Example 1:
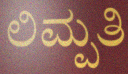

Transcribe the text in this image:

ಲಿಮ್ಪತಿ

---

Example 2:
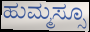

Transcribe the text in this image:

ಹುಮ್ಮಸ್ಸೂ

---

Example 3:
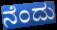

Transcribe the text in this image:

ನೆಂದು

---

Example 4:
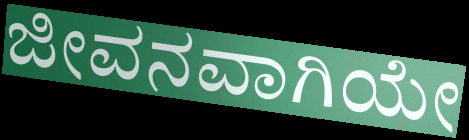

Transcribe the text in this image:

ಜೀವನವಾಗಿಯೇ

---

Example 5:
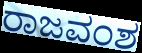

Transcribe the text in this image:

ರಾಜವಂಶ